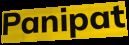
Panipat